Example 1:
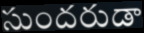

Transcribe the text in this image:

సుందరుడా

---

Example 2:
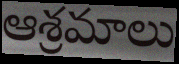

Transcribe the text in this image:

ఆశ్రమాలు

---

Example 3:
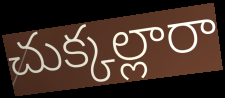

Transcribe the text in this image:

చుక్కల్లారా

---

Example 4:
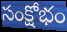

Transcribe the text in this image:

సంక్షోభం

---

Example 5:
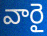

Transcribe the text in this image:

వారై